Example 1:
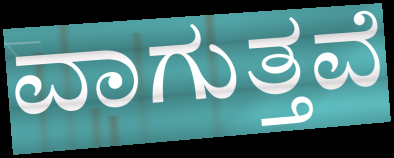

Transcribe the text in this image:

ವಾಗುತ್ತವೆ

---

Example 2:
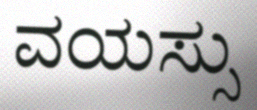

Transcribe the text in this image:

ವಯಸ್ಸು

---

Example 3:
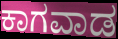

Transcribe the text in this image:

ಕಾಗವಾಡ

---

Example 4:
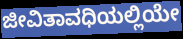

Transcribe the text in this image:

ಜೀವಿತಾವಧಿಯಲ್ಲಿಯೇ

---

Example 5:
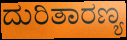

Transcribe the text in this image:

ದುರಿತಾರಣ್ಯ